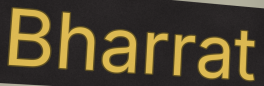
Bharrat